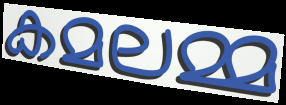
കമലമ്മ